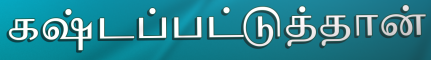
கஷ்டப்பட்டுத்தான்